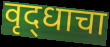
वृद्धाचा